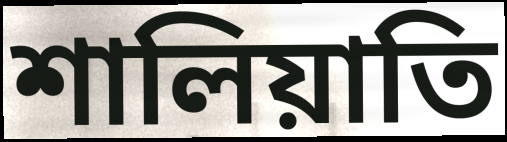
শালিয়াতি